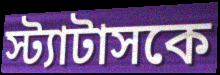
স্ট্যাটাসকে